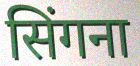
सिंगना